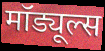
मॉड्यूल्स